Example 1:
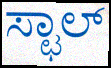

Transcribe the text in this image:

ಸ್ಟಾಲ್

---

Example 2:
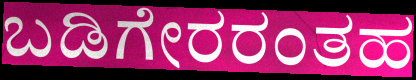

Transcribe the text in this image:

ಬಡಿಗೇರರಂತಹ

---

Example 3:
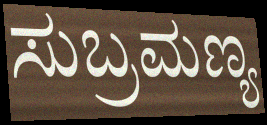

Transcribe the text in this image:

ಸುಬ್ರಮಣ್ಯ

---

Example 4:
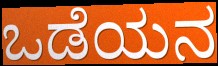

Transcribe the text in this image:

ಒಡೆಯನ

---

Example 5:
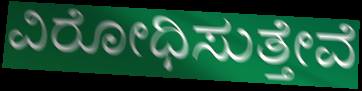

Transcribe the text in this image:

ವಿರೋಧಿಸುತ್ತೇವೆ